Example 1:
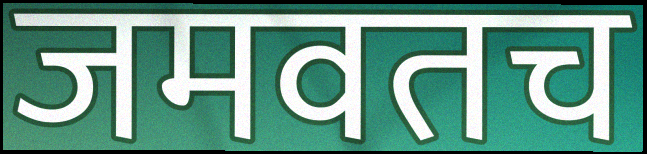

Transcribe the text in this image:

जमवतच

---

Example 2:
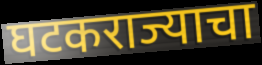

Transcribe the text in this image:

घटकराज्याचा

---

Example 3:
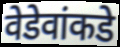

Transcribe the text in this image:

वेडेवांकडे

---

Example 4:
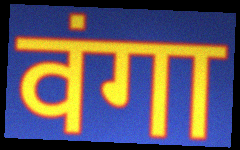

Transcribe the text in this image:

वंगा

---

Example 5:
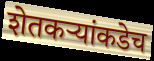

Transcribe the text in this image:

शेतकऱ्यांकडेच